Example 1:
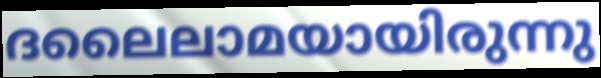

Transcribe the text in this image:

ദലൈലാമയായിരുന്നു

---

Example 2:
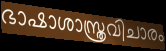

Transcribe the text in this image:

ഭാഷാശാസ്ത്രവിചാരം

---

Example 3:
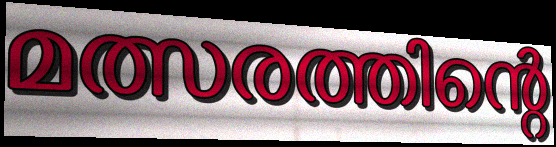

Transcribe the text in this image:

മത്സരത്തിന്റെ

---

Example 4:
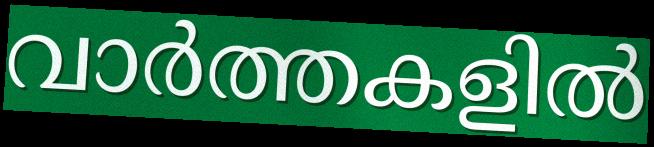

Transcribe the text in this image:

വാർത്തകളിൽ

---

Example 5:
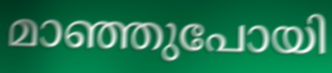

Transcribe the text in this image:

മാഞ്ഞുപോയി